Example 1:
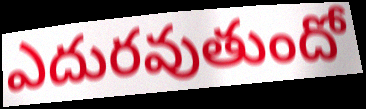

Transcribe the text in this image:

ఎదురవుతుందో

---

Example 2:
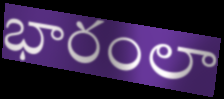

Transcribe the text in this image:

భారంలా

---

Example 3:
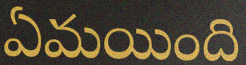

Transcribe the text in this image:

ఏమయింది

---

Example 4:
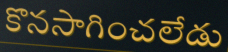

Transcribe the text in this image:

కొనసాగించలేడు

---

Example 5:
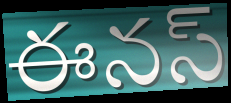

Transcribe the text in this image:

ఈనస్